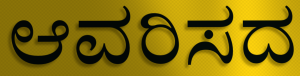
ಆವರಿಸದ